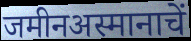
जमीनअस्मानाचें